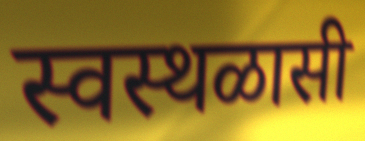
स्वस्थळासी